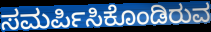
ಸಮರ್ಪಿಸಿಕೊಂಡಿರುವ